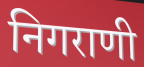
निगराणी